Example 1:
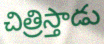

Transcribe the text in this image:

చిత్రిస్తాడు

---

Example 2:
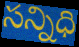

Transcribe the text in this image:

సన్నిధి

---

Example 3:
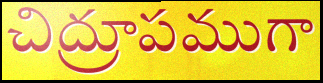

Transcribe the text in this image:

చిద్రూపముగా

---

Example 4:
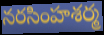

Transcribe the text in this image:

నరసింహశర్మ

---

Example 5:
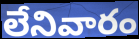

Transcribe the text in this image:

లేనివారం